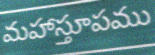
మహాస్తూపము